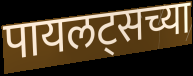
पायलट्सच्या